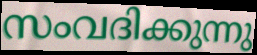
സംവദിക്കുന്നു